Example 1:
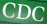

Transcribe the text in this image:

CDC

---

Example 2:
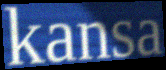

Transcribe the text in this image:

kansa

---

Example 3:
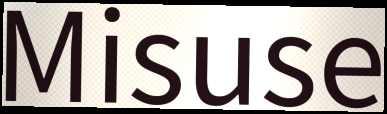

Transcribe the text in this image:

Misuse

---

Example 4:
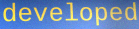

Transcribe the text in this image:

developed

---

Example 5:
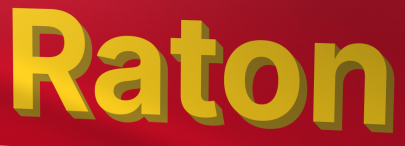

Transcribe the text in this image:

Raton